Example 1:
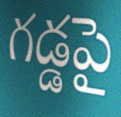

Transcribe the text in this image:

గడ్డపై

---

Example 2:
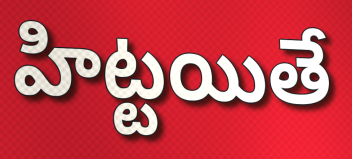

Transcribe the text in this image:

హిట్టయితే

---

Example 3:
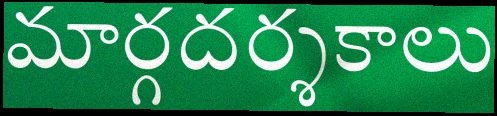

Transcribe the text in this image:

మార్గదర్శకాలు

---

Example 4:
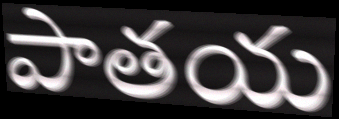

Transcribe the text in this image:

పాతయ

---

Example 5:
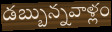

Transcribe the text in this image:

డబ్బున్నవాళ్లం